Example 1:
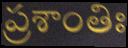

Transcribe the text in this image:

ప్రశాంతిః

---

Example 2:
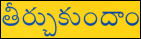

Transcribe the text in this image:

తీర్చుకుందాం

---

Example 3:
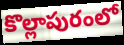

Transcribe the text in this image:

కొల్లాపురంలో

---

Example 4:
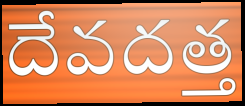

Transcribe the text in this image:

దేవదత్త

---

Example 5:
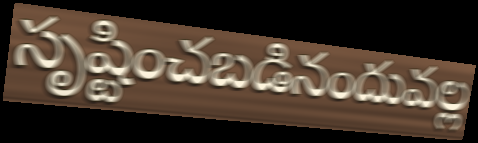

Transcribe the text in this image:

సృష్టించబడినందువల్ల